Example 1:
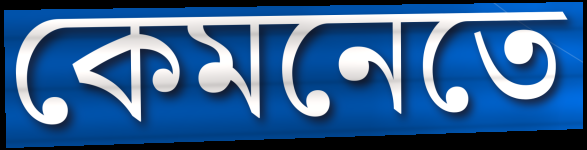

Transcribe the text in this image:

কেমনেতে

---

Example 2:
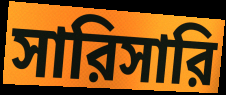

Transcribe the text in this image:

সারিসারি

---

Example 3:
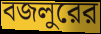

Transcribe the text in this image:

বজলুরের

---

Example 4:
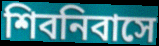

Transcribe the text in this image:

শিবনিবাসে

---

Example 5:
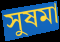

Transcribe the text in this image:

সুষমা